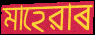
মাহেৱাৰ